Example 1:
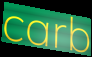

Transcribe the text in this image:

carb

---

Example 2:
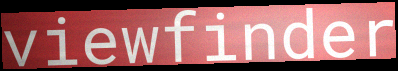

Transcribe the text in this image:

viewfinder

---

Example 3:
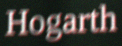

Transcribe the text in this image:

Hogarth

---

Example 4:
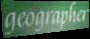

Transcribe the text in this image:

geographer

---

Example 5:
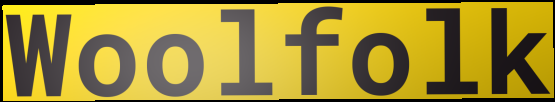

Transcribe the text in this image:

Woolfolk